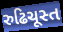
રુઢિચૂસ્ત